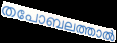
തപോബലത്താൽ